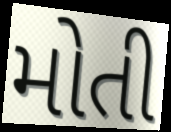
મોતી